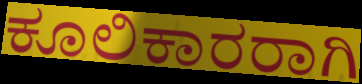
ಕೂಲಿಕಾರರಾಗಿ